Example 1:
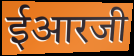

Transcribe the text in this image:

ईआरजी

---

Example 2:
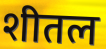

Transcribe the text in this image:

शीतल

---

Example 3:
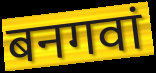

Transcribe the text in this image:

बनगवां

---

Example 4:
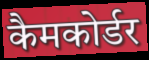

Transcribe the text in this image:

कैमकोर्डर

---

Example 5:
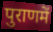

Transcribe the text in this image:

पुराणमें